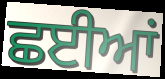
ਛਈਆਂ